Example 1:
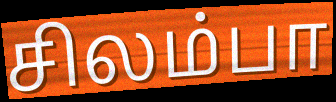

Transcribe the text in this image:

சிலம்பா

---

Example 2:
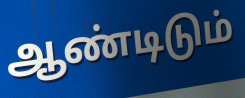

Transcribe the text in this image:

ஆண்டிடும்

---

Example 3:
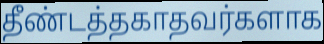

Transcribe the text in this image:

தீண்டத்தகாதவர்களாக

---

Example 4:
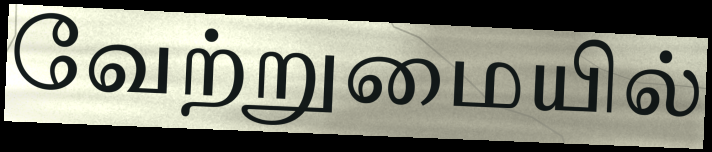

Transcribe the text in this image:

வேற்றுமையில்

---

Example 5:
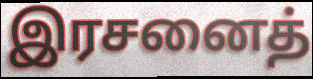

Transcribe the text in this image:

இரசனைத்